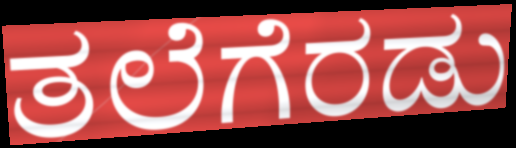
ತಲೆಗೆರಡು